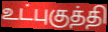
உட்புகுத்தி